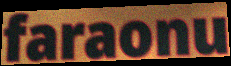
faraonu